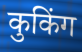
कुकिंग